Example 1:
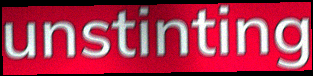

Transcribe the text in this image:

unstinting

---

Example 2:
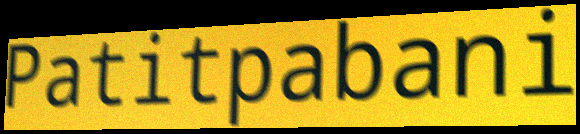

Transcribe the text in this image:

Patitpabani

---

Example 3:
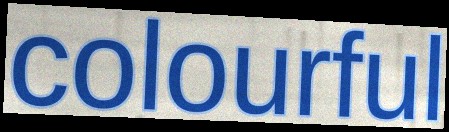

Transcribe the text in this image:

colourful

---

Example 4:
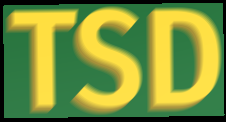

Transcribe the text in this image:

TSD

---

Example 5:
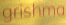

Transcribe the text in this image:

grishma